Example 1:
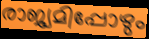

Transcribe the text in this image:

രാജ്യമിപ്പോഴും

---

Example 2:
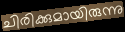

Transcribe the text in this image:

ചിരിക്കുമായിരുന്നു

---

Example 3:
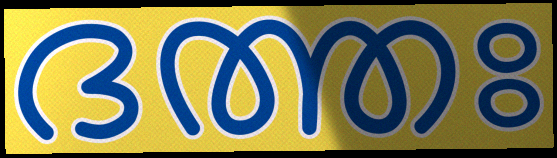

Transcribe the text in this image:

ദത്തഃ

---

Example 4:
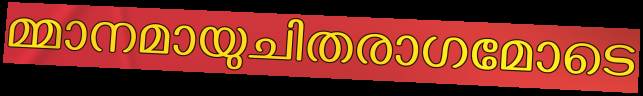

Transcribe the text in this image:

മ്മാനമായുചിതരാഗമോടെ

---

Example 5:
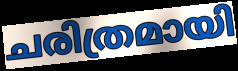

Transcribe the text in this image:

ചരിത്രമായി